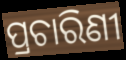
ପ୍ରଚାରିଣୀ